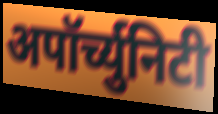
अपॉर्च्युनिटी